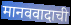
मानववादाची